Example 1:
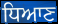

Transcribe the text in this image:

ਧਿਆਣ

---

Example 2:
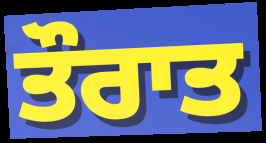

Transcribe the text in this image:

ਤੌਰਾਤ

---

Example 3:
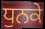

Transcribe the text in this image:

ਧੁਨਕੇ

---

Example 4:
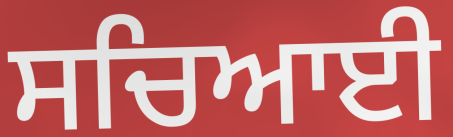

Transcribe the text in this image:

ਸਚਿਆਈ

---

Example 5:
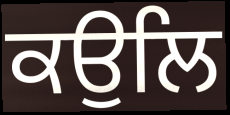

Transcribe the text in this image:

ਕਉਲਿ